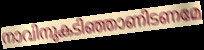
നാവിനുകടിഞ്ഞാണിടണമേ